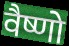
वैष्णो